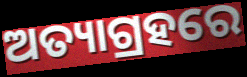
ଅତ୍ୟାଗ୍ରହରେ